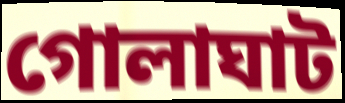
গোলাঘাট